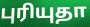
புரியுதா